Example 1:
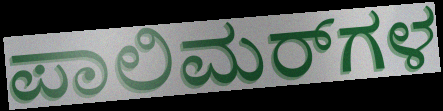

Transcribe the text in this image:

ಪಾಲಿಮರ್‌ಗಳ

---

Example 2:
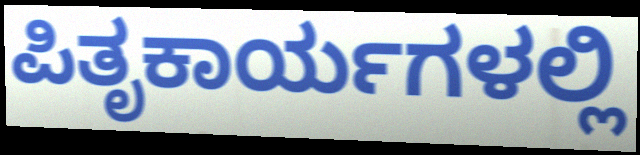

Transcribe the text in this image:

ಪಿತೃಕಾರ್ಯಗಳಲ್ಲಿ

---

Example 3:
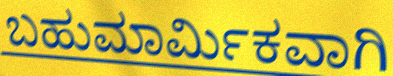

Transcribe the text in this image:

ಬಹುಮಾರ್ಮಿಕವಾಗಿ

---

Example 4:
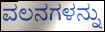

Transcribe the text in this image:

ವಲನಗಳನ್ನು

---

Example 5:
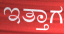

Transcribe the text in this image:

ಇತ್ತಾಗ